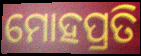
ମୋହପ୍ରତି